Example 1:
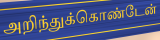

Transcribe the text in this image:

அறிந்துக்கொண்டேன்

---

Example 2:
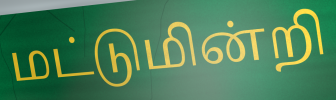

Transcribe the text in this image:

மட்டுமின்றி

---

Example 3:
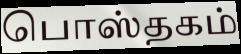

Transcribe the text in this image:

பொஸ்தகம்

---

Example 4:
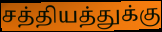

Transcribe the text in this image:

சத்தியத்துக்கு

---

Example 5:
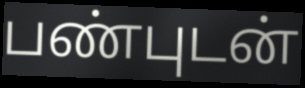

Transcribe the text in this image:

பண்புடன்